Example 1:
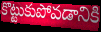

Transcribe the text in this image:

కొట్టుకుపోవడానికి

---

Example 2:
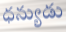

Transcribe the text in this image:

ధన్యుడు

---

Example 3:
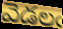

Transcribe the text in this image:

వెడలఁ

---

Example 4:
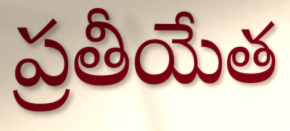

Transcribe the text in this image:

ప్రతీయేత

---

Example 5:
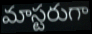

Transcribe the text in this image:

మాస్టరుగా